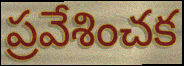
ప్రవేశించక